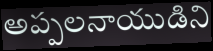
అప్పలనాయుడిని